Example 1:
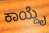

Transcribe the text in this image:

ಕಾಯ್ದೈ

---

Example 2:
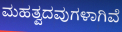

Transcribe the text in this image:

ಮಹತ್ವದವುಗಳಾಗಿವೆ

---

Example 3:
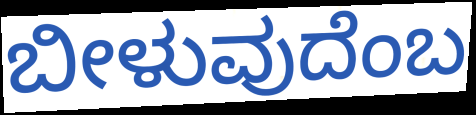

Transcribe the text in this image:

ಬೀಳುವುದೆಂಬ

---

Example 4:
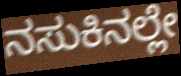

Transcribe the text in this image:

ನಸುಕಿನಲ್ಲೇ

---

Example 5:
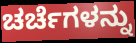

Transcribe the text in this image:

ಚರ್ಚೆಗಳನ್ನು